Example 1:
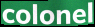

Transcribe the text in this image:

colonel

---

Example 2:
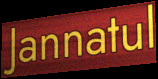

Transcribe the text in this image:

Jannatul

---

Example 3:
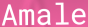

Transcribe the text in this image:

Amale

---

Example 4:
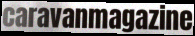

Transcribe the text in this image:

caravanmagazine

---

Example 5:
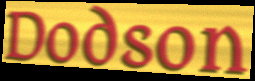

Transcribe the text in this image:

Dodson